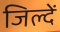
जिल्दें